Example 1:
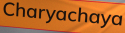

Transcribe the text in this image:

Charyachaya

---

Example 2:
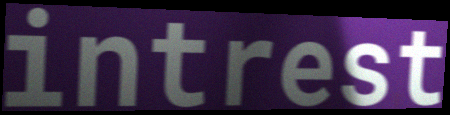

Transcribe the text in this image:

intrest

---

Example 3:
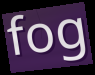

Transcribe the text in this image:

fog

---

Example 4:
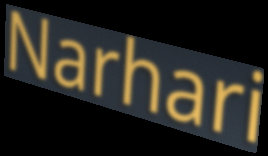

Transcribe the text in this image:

Narhari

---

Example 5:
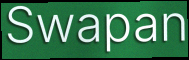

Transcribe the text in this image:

Swapan